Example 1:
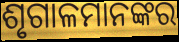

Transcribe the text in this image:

ଶୃଗାଳମାନଙ୍କର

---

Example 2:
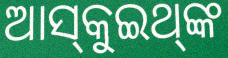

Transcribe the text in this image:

ଆସ୍‌କୁଇଥ୍‌ଙ୍କ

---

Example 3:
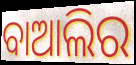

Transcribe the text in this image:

ବାଆଲିର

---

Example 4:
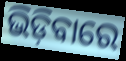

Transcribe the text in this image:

ଭିଡ଼ିବାରେ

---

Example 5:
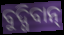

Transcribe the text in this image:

ବୁଦ୍ଧିବାନ୍